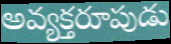
అవ్యక్తరూపుడు